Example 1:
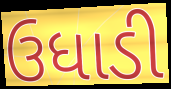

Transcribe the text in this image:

ઉધાડી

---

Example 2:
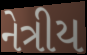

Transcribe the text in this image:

નેત્રીય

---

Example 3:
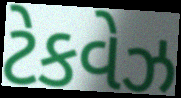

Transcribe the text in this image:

ટેકવેઝ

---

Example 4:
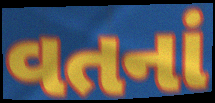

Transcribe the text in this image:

વતનાં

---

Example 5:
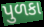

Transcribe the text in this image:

પુળકા